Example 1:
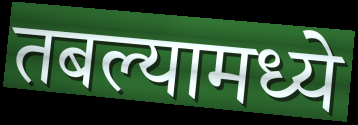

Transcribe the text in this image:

तबल्यामध्ये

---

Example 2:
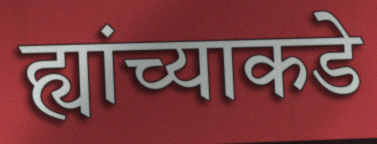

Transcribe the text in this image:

ह्यांच्याकडे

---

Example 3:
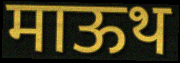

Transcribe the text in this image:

माऊथ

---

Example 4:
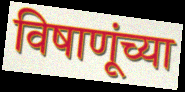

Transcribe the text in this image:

विषाणूंच्या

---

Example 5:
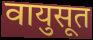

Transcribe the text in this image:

वायुसूत